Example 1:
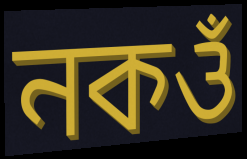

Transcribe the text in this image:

নকওঁ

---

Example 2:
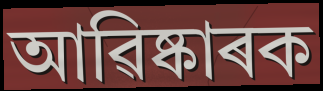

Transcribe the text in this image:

আৱিষ্কাৰক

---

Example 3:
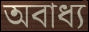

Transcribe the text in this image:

অবাধ্য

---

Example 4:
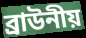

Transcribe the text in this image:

ব্ৰাউনীয়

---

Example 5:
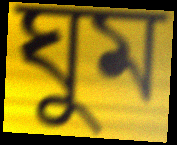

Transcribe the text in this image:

ঘুম